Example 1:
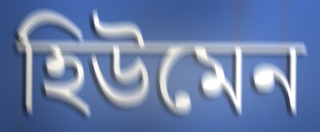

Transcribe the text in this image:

হিউমেন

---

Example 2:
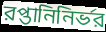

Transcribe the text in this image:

রপ্তানিনির্ভর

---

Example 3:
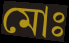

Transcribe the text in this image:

মোঃ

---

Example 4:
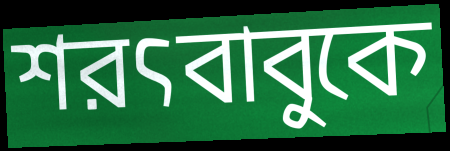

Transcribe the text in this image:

শরৎবাবুকে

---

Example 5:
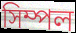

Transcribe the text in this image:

সিম্পল